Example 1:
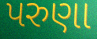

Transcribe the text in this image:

પરુણા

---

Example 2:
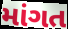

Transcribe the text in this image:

માંગત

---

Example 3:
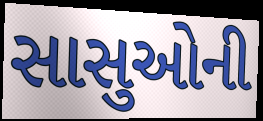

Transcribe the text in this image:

સાસુઓની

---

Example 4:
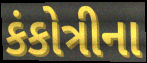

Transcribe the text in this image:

કંકોત્રીના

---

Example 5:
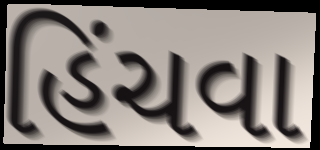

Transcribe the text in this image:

હિંચવા